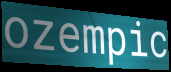
ozempic